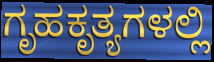
ಗೃಹಕೃತ್ಯಗಳಲ್ಲಿ